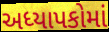
અધ્યાપકોમાં